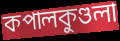
কপালকুণ্ডলা